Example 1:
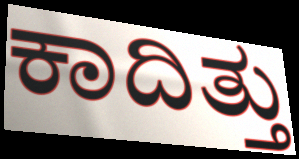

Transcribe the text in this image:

ಕಾದಿತ್ತು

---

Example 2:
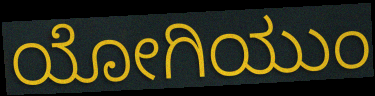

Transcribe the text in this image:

ಯೋಗಿಯುಂ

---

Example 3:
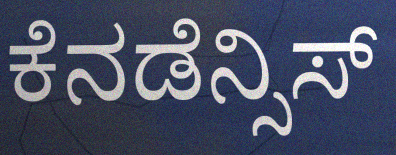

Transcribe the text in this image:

ಕೆನಡೆನ್ಸಿಸ್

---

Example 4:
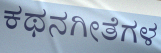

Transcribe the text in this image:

ಕಥನಗೀತೆಗಳ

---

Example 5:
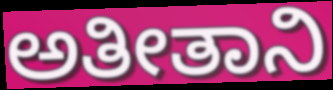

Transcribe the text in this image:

ಅತೀತಾನಿ